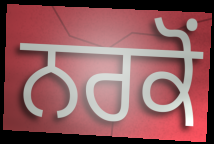
ਨਰਕੋਂ